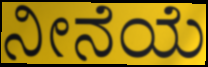
ನೀನೆಯೆ